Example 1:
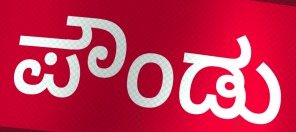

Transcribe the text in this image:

ಪೌಂಡು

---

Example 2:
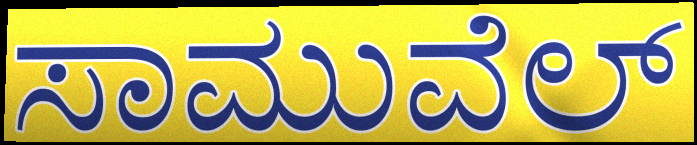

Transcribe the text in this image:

ಸಾಮುವೆಲ್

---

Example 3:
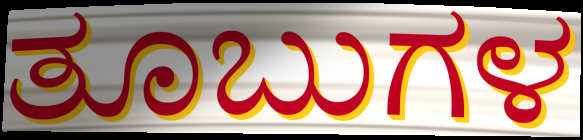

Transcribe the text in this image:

ತೂಬುಗಳ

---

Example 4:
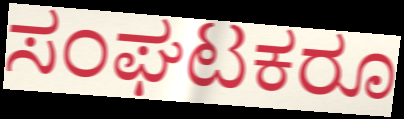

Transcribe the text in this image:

ಸಂಘಟಕರೂ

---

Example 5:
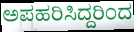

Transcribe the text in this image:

ಅಪಹರಿಸಿದ್ದರಿಂದ